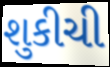
શુકીચી